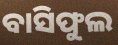
ବାସିଫୁଲ